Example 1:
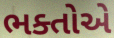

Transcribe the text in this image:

ભક્તોએ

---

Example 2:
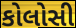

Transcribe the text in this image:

કોલોસી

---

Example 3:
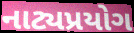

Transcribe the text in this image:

નાટ્યપ્રયોગ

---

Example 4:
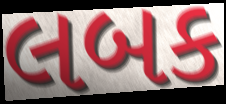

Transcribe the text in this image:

લબક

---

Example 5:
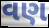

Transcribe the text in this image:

વણ